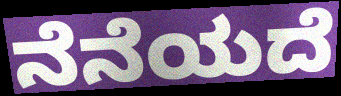
ನೆನೆಯದೆ